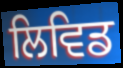
ਲਿਵਿਡ